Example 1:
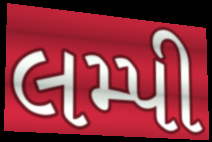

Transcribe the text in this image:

લમ્પી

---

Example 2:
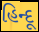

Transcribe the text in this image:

હિન્દૂ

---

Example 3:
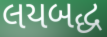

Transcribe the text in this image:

લયબદ્ધ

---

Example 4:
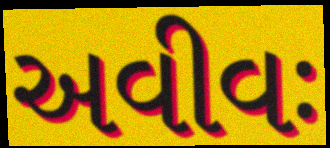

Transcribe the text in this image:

અવીવઃ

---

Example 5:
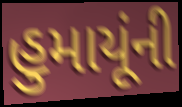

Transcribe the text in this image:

હુમાયૂંની